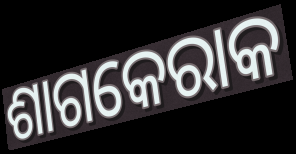
ଶାଗକେରାକ